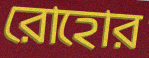
রোহোর